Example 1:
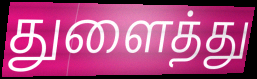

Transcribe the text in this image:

துளைத்து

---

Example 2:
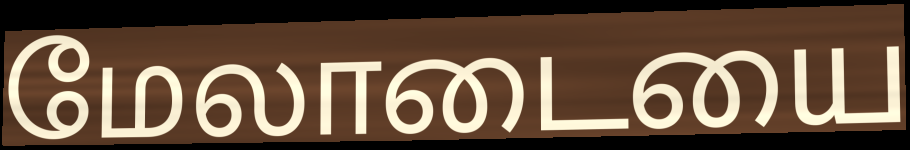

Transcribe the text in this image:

மேலாடையை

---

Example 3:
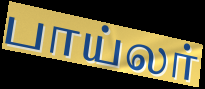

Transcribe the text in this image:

பாய்லர்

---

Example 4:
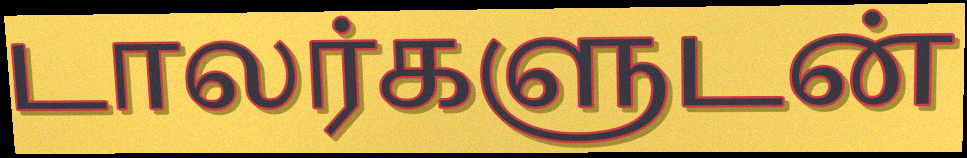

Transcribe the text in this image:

டாலர்களுடன்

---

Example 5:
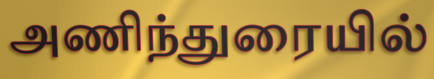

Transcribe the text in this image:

அணிந்துரையில்